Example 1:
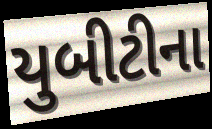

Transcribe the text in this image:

યુબીટીના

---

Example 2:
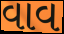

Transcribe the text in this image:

વાવ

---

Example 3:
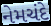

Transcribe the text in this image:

નેમચંદે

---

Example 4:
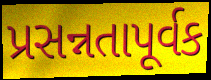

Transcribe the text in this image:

પ્રસન્નતાપૂર્વક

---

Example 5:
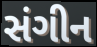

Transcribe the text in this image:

સંગીન